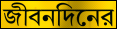
জীবনদিনের